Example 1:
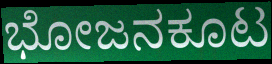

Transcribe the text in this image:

ಭೋಜನಕೂಟ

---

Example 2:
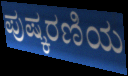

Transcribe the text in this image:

ಪುಷ್ಕರಣಿಯ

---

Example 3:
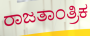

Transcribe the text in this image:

ರಾಜತಾಂತ್ರಿಕ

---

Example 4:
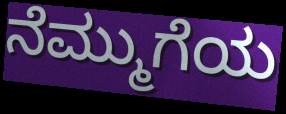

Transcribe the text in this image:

ನೆಮ್ಮುಗೆಯ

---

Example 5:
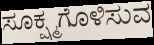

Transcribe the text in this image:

ಸೂಕ್ಷ್ಮಗೊಳಿಸುವ